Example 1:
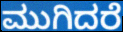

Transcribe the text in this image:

ಮುಗಿದರೆ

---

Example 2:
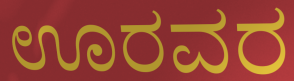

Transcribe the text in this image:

ಊರವರ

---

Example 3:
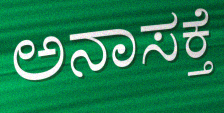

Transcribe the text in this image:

ಅನಾಸಕ್ತೆ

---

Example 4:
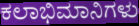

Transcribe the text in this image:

ಕಲಾಭಿಮಾನಿಗಳು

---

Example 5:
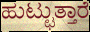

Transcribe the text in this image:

ಹುಟ್ಟುತ್ತಾರೆ